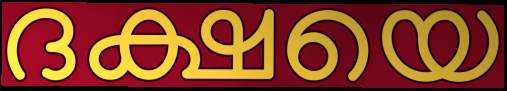
ദക്ഷയെ